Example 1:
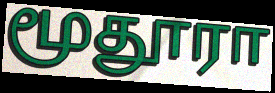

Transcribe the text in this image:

மூதூரா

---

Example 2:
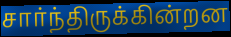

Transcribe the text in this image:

சார்ந்திருக்கின்றன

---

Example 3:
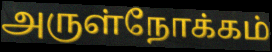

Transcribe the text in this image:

அருள்நோக்கம்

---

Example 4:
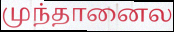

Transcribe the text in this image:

முந்தானைல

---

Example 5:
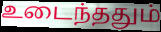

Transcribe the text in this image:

உடைந்ததும்